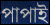
পাপাই